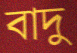
বাদু